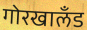
गोरखालॅंड